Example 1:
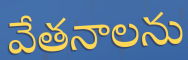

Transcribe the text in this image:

వేతనాలను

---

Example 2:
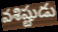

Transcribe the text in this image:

వశిష్టుడు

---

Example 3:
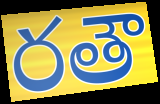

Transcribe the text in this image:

రతౌ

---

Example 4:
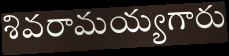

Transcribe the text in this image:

శివరామయ్యగారు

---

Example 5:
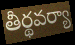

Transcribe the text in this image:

తీర్థవర్యా